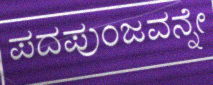
ಪದಪುಂಜವನ್ನೇ